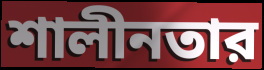
শালীনতার